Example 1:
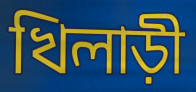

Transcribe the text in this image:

খিলাড়ী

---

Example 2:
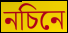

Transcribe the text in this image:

নচিনে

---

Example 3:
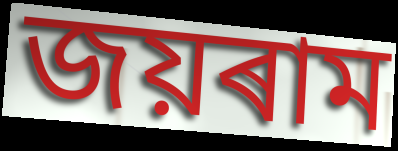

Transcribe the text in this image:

জয়ৰাম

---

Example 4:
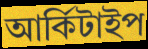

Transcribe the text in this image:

আৰ্কিটাইপ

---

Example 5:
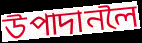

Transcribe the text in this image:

উপাদানলৈ